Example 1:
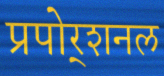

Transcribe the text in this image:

प्रपोर्शनल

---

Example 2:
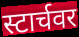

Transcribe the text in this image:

स्टार्चवर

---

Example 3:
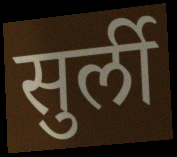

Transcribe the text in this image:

सुर्ली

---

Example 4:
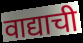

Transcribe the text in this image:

वाद्याची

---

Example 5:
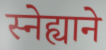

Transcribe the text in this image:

स्नेह्याने